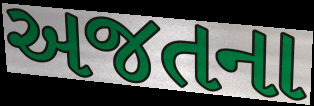
અજતના